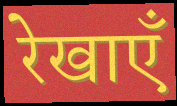
रेखाएँ